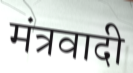
मंत्रवादी